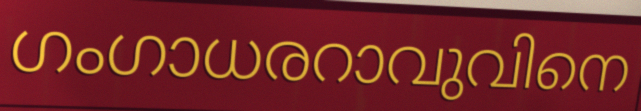
ഗംഗാധരറാവുവിനെ